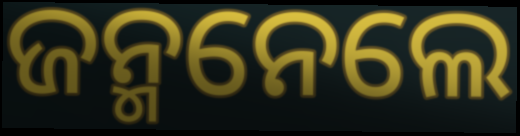
ଜନ୍ମନେଲେ